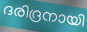
ദരിദ്രനായി